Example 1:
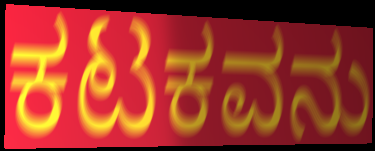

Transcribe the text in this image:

ಕಟಕವನು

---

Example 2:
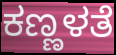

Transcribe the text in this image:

ಕಣ್ಣಳತೆ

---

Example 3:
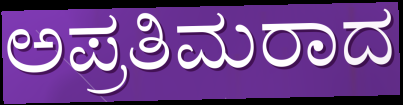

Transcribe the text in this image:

ಅಪ್ರತಿಮರಾದ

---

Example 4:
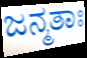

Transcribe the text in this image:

ಜನ್ಮತಾಃ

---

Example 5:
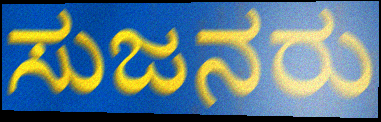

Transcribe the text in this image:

ಸುಜನರು